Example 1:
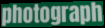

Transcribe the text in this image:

photograph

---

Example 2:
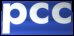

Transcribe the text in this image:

pcc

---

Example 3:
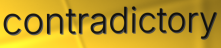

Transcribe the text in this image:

contradictory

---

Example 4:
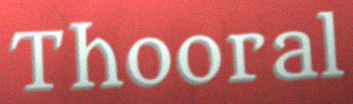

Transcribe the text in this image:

Thooral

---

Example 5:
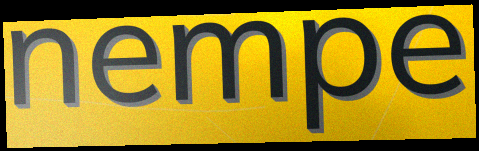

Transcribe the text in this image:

nempe